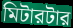
মিটারটার